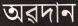
অৱদান